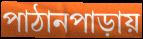
পাঠানপাড়ায়